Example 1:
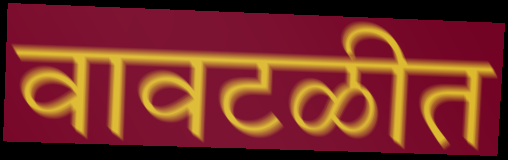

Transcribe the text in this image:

वावटळीत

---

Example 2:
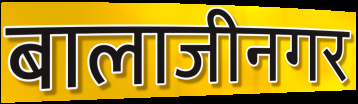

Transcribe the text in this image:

बालाजीनगर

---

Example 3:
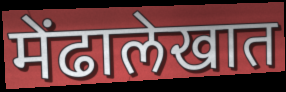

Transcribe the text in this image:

मेंढालेखात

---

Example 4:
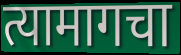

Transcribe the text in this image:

त्यामागचा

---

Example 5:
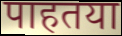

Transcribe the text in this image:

पाहतया